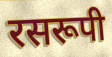
रसरूपी